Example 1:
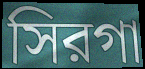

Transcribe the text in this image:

সিরগা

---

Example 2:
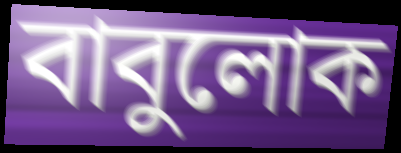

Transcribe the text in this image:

বাবুলোক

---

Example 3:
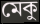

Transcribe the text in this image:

মেকু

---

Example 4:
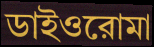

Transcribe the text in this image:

ডাইওরোমা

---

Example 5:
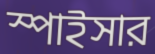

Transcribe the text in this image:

স্পাইসার